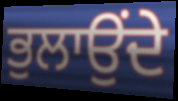
ਭੁਲਾਉਂਦੇ